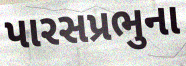
પારસપ્રભુના